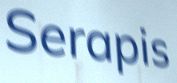
Serapis